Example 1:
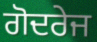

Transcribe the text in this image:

ਗੋਦਰੇਜ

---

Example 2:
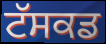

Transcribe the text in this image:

ਟੱਸਕਡ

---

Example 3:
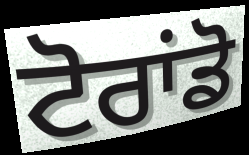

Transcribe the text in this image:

ਟੋਰਾਂਡੋ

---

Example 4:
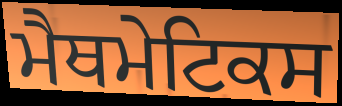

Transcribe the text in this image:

ਮੈਥਮੇਟਿਕਸ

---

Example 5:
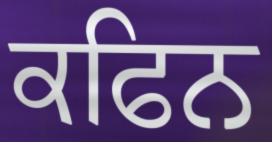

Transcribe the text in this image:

ਕਫਿਨ